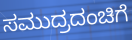
ಸಮುದ್ರದಂಚಿಗೆ